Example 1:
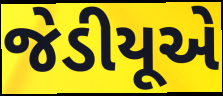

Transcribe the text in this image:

જેડીયૂએ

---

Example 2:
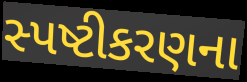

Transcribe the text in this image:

સ્પષ્ટીકરણના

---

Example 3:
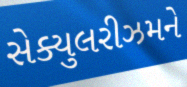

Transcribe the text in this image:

સેક્યુલરીઝમને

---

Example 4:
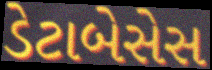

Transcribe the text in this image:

ડેટાબેસેસ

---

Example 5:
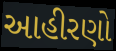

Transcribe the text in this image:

આહીરણો